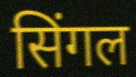
सिंगल